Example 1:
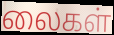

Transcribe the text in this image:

லைகள்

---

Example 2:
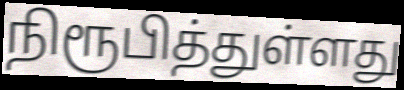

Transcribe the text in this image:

நிரூபித்துள்ளது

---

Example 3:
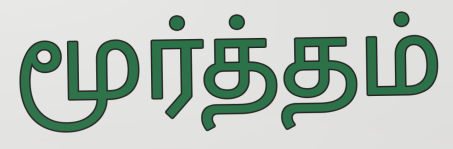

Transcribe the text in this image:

மூர்த்தம்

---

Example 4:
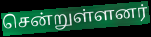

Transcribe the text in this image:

சென்றுள்ளனர்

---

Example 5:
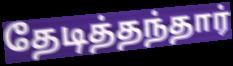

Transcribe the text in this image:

தேடித்தந்தார்